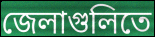
জেলাগুলিতে